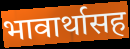
भावार्थासह